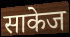
साकेज